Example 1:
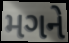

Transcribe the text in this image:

મગને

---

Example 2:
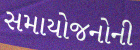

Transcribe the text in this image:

સમાયોજનોની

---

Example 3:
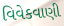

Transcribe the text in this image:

વિવેકવાણી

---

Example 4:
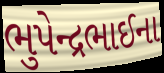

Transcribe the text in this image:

ભુપેન્દ્રભાઈના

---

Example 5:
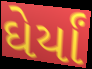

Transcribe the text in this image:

ઘેર્યાં